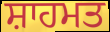
ਸ਼ਾਹਮਤ